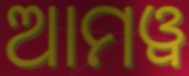
ଆମୱ